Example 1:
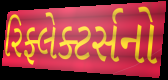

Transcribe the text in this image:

રિફ્લેક્ટર્સનો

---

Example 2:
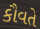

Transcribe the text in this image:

કૌવતે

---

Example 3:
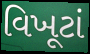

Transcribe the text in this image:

વિખૂટાં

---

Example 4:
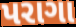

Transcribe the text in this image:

પરાગા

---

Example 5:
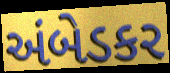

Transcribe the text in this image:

અંબેડકર